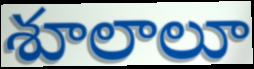
శూలాలూ